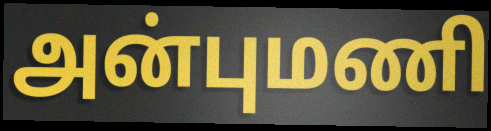
அன்புமணி